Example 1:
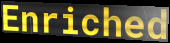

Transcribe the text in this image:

Enriched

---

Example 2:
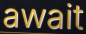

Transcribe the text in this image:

await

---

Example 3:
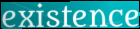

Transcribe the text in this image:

existence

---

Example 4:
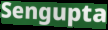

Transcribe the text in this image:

Sengupta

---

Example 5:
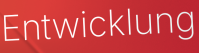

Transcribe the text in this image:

Entwicklung